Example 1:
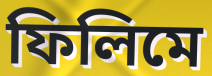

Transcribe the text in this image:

ফিলিমে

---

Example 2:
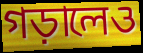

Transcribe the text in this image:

গড়ালেও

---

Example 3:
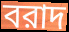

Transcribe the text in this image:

বরাদ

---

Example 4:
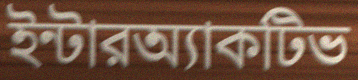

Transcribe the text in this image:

ইন্টারঅ্যাকটিভ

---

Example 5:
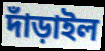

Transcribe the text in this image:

দাঁড়াইল